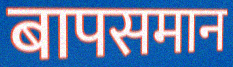
बापसमान